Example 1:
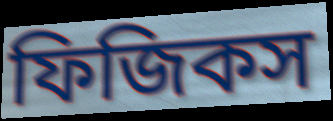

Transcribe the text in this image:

ফিজিকস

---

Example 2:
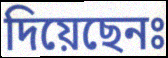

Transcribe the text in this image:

দিয়েছেনঃ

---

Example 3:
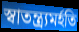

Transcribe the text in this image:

স্বাতন্ত্র্যমর্হতি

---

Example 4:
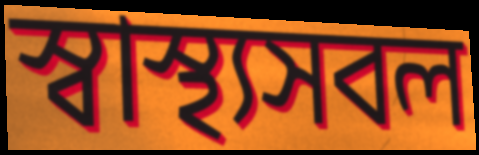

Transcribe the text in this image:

স্বাস্থ্যসবল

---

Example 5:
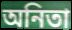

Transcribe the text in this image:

অনিতা